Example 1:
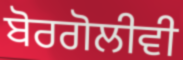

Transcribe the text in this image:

ਬੋਰਗੋਲੀਵੀ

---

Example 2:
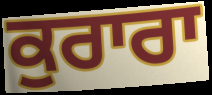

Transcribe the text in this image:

ਕੁਰਾਰਾ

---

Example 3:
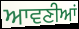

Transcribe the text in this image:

ਆਵਣੀਆਂ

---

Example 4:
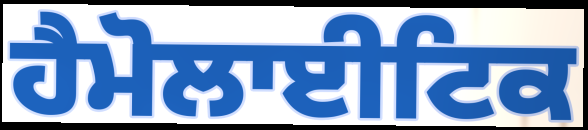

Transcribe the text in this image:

ਹੈਮੋਲਾਈਟਿਕ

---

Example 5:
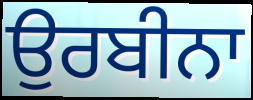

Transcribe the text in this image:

ਉਰਬੀਨਾ